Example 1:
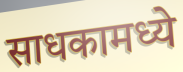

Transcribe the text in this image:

साधकामध्ये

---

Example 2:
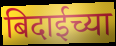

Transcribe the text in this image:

बिदाईच्या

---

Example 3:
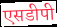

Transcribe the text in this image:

एसडीपी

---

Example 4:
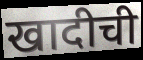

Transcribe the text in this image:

खादीची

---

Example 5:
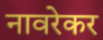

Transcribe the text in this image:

नावरेकर